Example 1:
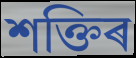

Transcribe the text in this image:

শক্তিৰ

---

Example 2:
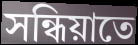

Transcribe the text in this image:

সন্ধিয়াতে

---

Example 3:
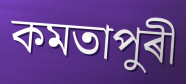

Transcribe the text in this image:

কমতাপুৰী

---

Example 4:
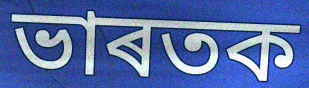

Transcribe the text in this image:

ভাৰতক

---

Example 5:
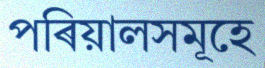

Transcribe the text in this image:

পৰিয়ালসমূহে